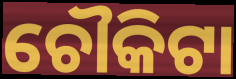
ଚୌକିଟା